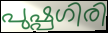
പുഷ്പഗിരി